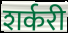
शर्करी